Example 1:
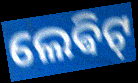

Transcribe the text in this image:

ଲେଵିଟ୍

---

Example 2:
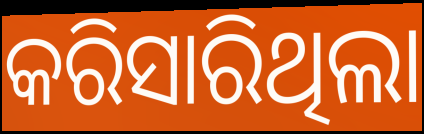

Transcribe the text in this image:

କରିସାରିଥିଲା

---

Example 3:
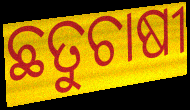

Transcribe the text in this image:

ଛତୁଚାଷୀ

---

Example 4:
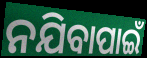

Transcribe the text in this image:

ନଯିବାପାଇଁ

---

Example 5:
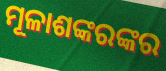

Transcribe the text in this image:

ମୂଳାଶଙ୍କରଙ୍କର